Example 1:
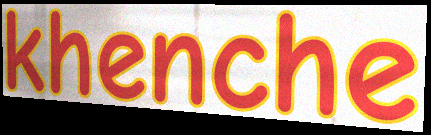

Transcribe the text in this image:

khenche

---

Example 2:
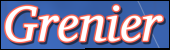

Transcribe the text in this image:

Grenier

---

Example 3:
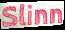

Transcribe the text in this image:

Slinn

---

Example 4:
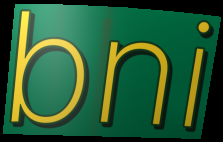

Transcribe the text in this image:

bni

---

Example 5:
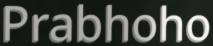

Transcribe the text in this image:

Prabhoho